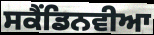
ਸਕੈਂਡਿਨਵੀਆ